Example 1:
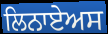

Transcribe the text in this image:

ਲਿਨਾਏਅਸ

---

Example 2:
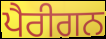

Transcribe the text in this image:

ਪੈਰੀਗਨ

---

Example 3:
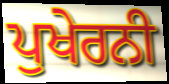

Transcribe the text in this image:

ਪੁਖੇਰਨੀ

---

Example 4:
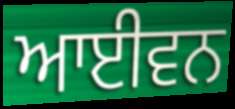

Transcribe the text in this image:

ਆਈਵਨ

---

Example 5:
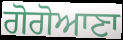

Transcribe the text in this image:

ਗੋਗੋਆਣਾ